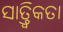
ସାତ୍ତ୍ଵିକତା